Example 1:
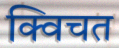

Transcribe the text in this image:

क्विचत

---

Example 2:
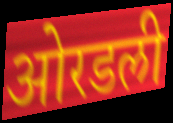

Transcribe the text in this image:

ओरडली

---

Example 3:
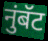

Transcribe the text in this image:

नुंबॅट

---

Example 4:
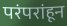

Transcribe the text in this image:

परंपरांहून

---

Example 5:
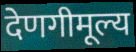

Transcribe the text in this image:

देणगीमूल्य